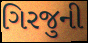
ગિરજુની